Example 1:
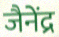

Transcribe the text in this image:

जैनेंद्र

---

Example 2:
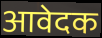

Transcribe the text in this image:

आवेदक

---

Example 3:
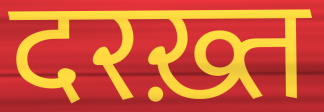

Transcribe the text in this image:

दरख़्त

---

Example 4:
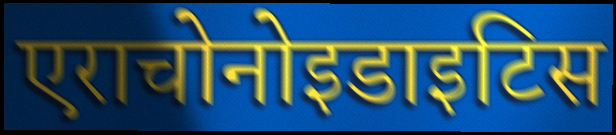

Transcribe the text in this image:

एराचोनोइडाइटिस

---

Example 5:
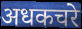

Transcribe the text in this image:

अधकचरे